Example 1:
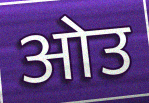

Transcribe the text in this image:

ओउ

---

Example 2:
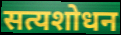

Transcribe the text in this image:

सत्यशोधन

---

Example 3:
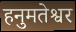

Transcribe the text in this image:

हनुमतेश्वर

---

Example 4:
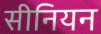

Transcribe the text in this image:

सीनियन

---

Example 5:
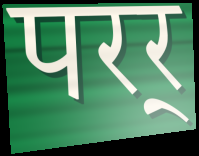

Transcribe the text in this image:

परर्